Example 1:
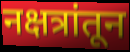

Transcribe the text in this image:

नक्षत्रांतून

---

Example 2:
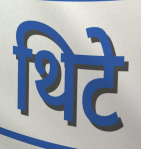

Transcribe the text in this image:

थिटे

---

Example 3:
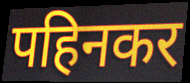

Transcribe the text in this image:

पहिनकर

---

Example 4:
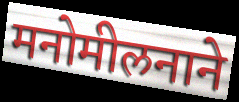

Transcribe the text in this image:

मनोमीलनाने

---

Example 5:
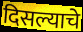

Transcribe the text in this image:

दिसल्याचे